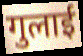
गुलाई